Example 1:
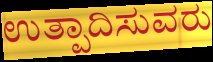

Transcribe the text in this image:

ಉತ್ಪಾದಿಸುವರು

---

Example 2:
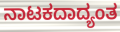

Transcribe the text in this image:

ನಾಟಕದಾದ್ಯಂತ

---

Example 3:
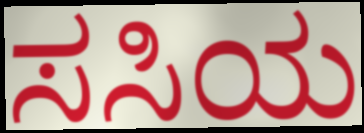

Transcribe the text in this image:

ಸಸಿಯ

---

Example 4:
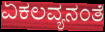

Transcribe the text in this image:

ಏಕಲವ್ಯನಂತೆ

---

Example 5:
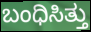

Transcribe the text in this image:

ಬಂಧಿಸಿತ್ತು